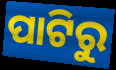
ପାଟିରୁ